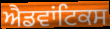
ਐਡਵਾਂਟਿਕਸ